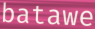
batawe